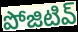
పోజిటివ్